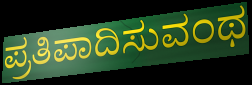
ಪ್ರತಿಪಾದಿಸುವಂಥ